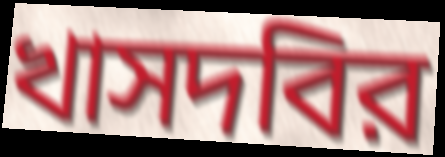
খাসদবির